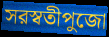
সরস্বতীপুজো